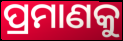
ପ୍ରମାଣକୁ